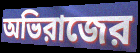
অভিরাজের